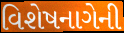
વિશેષનાગેની